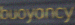
buoyancy